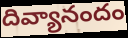
దివ్యానందం